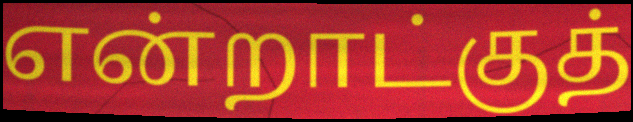
என்றாட்குத்